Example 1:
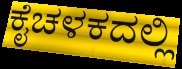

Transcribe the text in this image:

ಕೈಚಳಕದಲ್ಲಿ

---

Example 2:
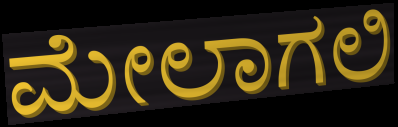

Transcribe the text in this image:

ಮೇಲಾಗಲಿ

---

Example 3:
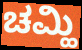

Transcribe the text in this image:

ಚಮ್ಹಿ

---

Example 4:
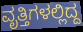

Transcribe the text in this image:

ವೃತ್ತಿಗಳಲ್ಲಿದ್ದ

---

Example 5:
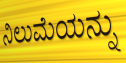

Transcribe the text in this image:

ನಿಲುಮೆಯನ್ನು